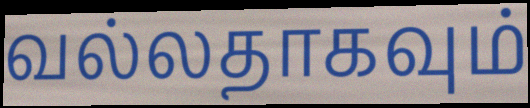
வல்லதாகவும்